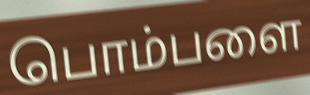
பொம்பளை